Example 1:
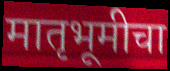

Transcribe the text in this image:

मातृभूमीचा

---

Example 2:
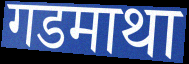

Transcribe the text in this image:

गडमाथा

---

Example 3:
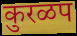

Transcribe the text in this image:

कुरळप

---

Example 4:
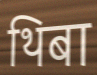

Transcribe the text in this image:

थिबा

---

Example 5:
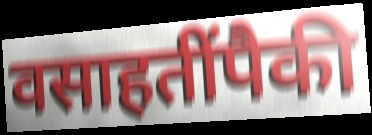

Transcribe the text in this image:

वसाहतींपैकी